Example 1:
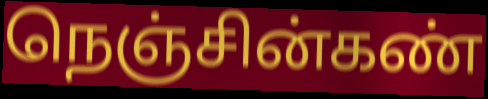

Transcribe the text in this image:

நெஞ்சின்கண்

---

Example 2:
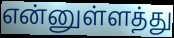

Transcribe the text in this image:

என்னுள்ளத்து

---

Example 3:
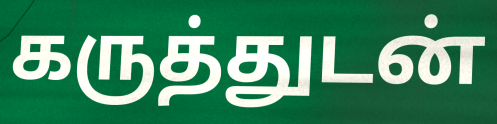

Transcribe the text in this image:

கருத்துடன்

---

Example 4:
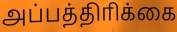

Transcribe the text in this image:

அப்பத்திரிக்கை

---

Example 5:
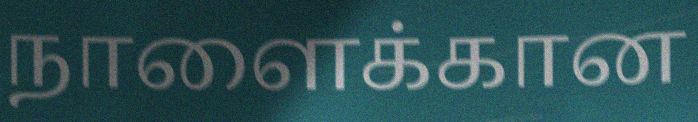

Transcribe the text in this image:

நாளைக்கான